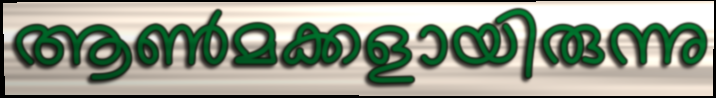
ആൺമക്കളായിരുന്നു